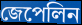
জেপেলিন